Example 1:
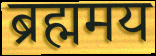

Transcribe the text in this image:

ब्रह्ममय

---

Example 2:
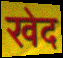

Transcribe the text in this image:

खेद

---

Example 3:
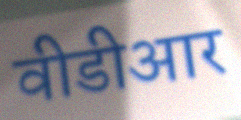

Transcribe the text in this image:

वीडीआर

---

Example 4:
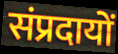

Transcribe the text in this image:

संप्रदायों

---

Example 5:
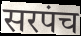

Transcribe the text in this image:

सरपंच